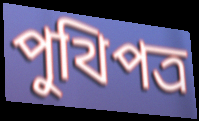
পুথিপত্র